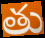
తు